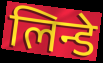
लिन्डे